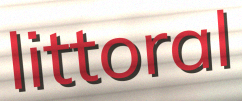
littoral